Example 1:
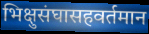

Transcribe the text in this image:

भिक्षुसंघासहवर्तमान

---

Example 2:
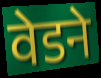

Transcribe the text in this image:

वेडने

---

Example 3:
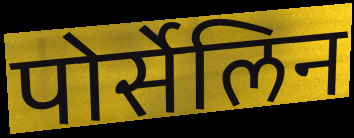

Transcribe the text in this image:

पोर्सेलिन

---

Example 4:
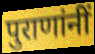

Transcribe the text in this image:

पुराणांनीं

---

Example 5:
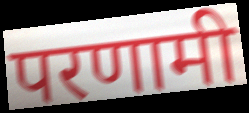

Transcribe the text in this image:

परणामी